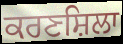
ਕਰਣਸ਼ਿਲਾ